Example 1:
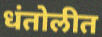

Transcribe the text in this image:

धंतोलीत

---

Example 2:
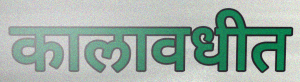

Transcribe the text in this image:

कालावधीत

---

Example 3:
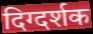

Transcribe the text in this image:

दिग्दर्शक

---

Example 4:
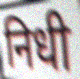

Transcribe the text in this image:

निधी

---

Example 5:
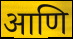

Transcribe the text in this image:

आणि